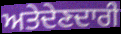
ਅਤੇਦੇਣਦਾਰੀ